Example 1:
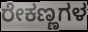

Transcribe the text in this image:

ರೇಕಣ್ಣಗಳ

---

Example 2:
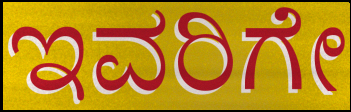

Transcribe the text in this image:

ಇವರಿಗೇ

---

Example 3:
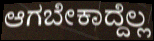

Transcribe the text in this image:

ಆಗಬೇಕಾದ್ದೆಲ್ಲ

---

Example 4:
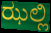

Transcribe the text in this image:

ಝಲ್ಲಿ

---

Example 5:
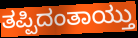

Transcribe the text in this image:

ತಪ್ಪಿದಂತಾಯ್ತು